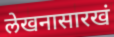
लेखनासारखं